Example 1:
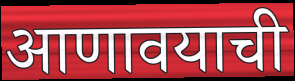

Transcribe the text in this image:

आणावयाची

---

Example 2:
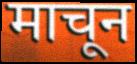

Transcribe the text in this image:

माचून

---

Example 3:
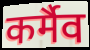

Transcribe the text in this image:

कर्मैव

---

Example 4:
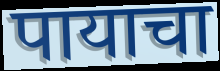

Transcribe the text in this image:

पायाचा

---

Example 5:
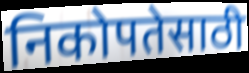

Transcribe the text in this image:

निकोपतेसाठी